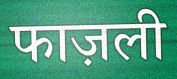
फाज़ली